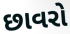
છાવરો